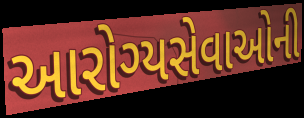
આરોગ્યસેવાઓની